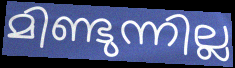
മിണ്ടുന്നില്ല